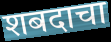
शबदाचा